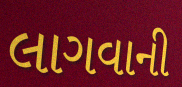
લાગવાની